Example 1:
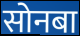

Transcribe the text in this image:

सोनबा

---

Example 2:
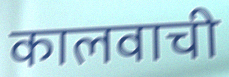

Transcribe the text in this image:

कालवाची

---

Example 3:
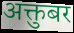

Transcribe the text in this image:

अक्तुबर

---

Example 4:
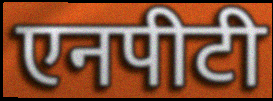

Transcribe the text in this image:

एनपीटी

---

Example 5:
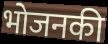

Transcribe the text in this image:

भोजनकी